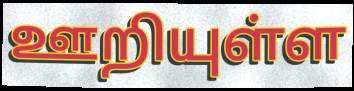
ஊறியுள்ள